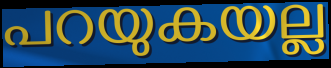
പറയുകയല്ല